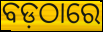
ବଡ଼ଠାରେ